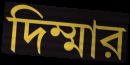
দিম্মার